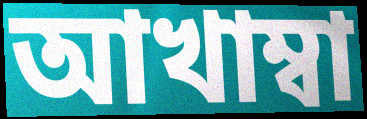
আখাম্বা